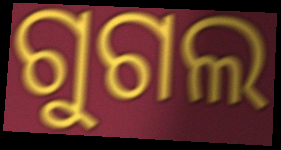
ଗୁଗଲ